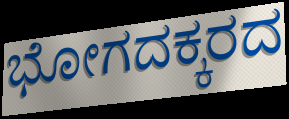
ಭೋಗದಕ್ಕರದ